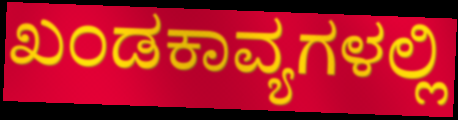
ಖಂಡಕಾವ್ಯಗಳಲ್ಲಿ